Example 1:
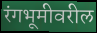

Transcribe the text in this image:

रंगभूमीवरील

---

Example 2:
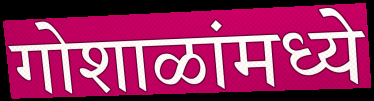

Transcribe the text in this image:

गोशाळांमध्ये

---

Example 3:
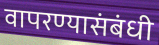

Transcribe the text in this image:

वापरण्यासंबंधी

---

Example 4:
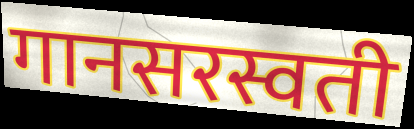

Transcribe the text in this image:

गानसरस्वती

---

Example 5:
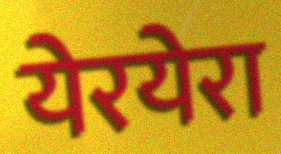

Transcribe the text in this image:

येरयेरा